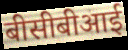
बीसीबीआई